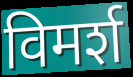
विमर्श